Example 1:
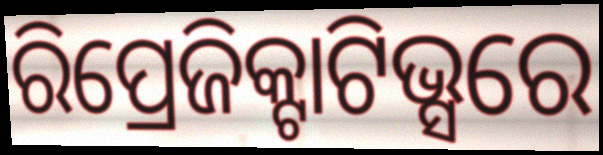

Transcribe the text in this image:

ରିପ୍ରେଜିକ୍ଟାଟିଭ୍ସରେ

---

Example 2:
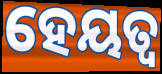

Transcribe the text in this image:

ହେୟତ୍ୱ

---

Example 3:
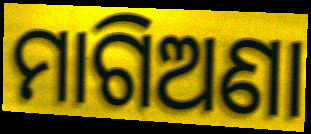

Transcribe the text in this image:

ମାଗିଅଣା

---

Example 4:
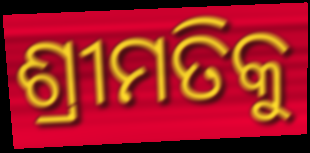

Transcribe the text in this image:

ଶ୍ରୀମତିକୁ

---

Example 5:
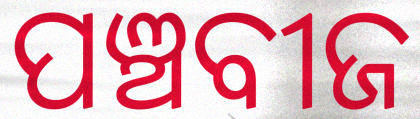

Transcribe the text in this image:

ପଞ୍ଚବୀଜ